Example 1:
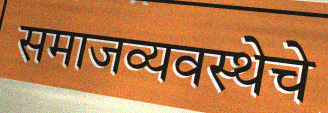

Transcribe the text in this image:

समाजव्यवस्थेचे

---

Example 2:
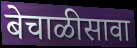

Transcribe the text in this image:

बेचाळीसावा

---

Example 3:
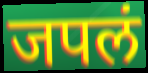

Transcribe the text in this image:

जपलं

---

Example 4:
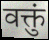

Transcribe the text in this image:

वक्तुं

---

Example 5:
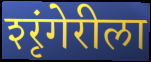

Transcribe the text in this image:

श्रृंगेरीला